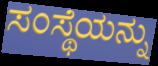
ಸಂಸ್ಥೆಯನ್ನು